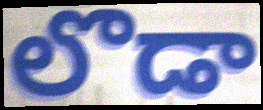
లొడా